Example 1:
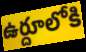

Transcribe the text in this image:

ఉర్దూలోకి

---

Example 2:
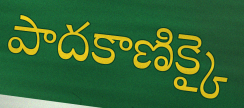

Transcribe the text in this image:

పాదకాణిక్కై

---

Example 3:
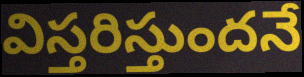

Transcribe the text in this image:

విస్తరిస్తుందనే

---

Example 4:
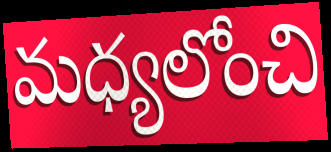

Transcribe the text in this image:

మధ్యలోంచి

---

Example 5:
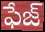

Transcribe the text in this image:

ఫేజ్